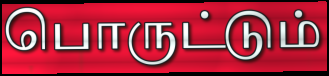
பொருட்டும்